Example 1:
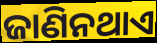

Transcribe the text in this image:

ଜାଣିନଥାଏ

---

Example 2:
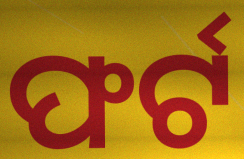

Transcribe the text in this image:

ଫର୍ଟ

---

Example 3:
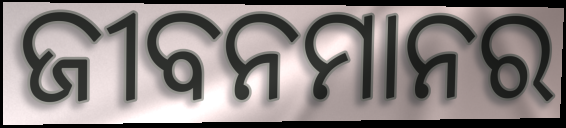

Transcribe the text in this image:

ଜୀବନମାନର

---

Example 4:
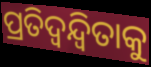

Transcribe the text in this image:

ପ୍ରତିଦ୍ୱନ୍ଦ୍ୱିତାକୁ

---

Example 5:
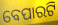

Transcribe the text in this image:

ବେପାରଟି